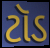
ટૉડ